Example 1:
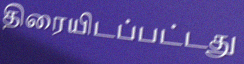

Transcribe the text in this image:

திரையிடப்பட்டது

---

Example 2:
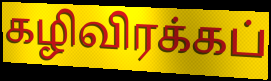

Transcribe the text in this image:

கழிவிரக்கப்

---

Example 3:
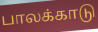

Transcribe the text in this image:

பாலக்காடு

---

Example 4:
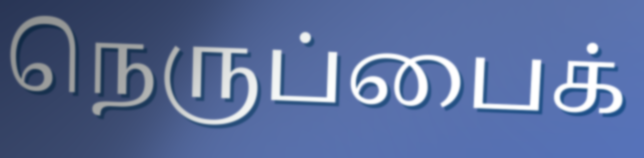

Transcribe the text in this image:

நெருப்பைக்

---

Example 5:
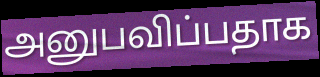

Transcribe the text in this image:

அனுபவிப்பதாக